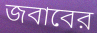
জবাবের